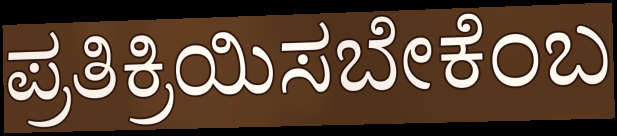
ಪ್ರತಿಕ್ರಿಯಿಸಬೇಕೆಂಬ